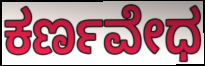
ಕರ್ಣವೇಧ